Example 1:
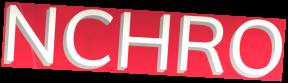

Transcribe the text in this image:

NCHRO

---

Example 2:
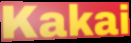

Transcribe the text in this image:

Kakai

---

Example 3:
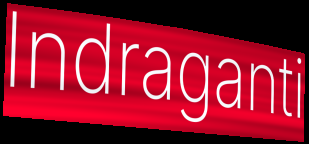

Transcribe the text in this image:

Indraganti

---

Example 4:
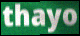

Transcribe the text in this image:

thayo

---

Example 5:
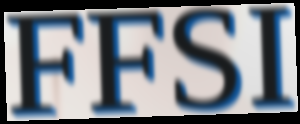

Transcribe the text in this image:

FFSI